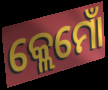
କ୍ଲେମୋଁ